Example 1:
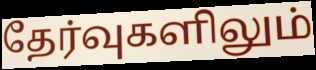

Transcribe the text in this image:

தேர்வுகளிலும்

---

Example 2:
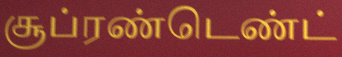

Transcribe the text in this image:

சூப்ரண்டெண்ட்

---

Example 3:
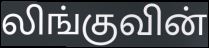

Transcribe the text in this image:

லிங்குவின்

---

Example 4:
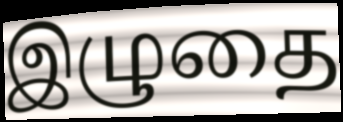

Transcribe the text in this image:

இழுதை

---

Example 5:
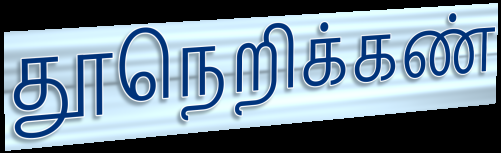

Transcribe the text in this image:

தூநெறிக்கண்